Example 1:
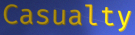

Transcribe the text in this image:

Casualty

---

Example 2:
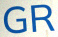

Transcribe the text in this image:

GR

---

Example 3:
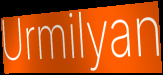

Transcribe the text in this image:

Urmilyan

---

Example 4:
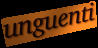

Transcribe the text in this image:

unguenti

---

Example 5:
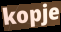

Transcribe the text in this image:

kopje